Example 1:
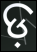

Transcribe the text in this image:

ଡ଼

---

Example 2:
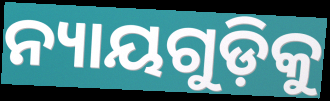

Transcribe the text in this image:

ନ୍ୟାୟଗୁଡ଼ିକୁ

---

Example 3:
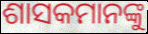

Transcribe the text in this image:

ଶାସକମାନଙ୍କୁ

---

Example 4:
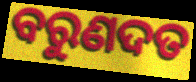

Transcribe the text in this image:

ବରୁଣଦତ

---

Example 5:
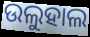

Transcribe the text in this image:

ଉଲୁହାଲ